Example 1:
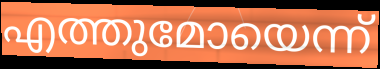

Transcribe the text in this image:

എത്തുമോയെന്ന്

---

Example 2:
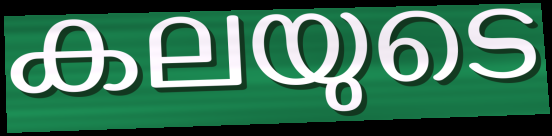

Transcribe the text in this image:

കലയുടെ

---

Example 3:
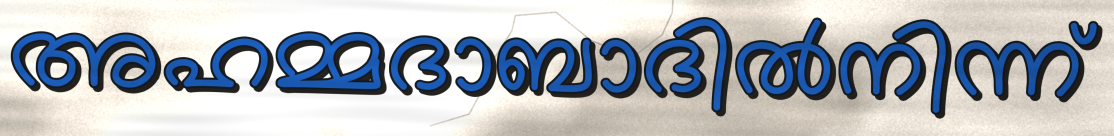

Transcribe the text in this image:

അഹമ്മദാബാദിൽനിന്ന്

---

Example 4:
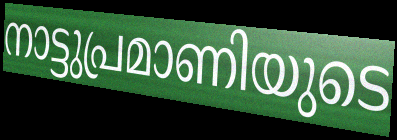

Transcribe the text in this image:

നാട്ടുപ്രമാണിയുടെ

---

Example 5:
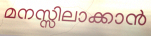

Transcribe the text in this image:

മനസ്സിലാക്കാൻ